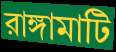
রাঙ্গামাটি